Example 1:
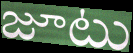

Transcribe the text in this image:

జూటు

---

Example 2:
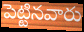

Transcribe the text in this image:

పెట్టినవారు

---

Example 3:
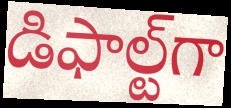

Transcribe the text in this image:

డిఫాల్ట్‌గా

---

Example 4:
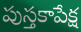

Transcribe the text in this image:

పుస్తకాపేక్ష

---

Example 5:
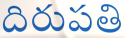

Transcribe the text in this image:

దిరుపతి